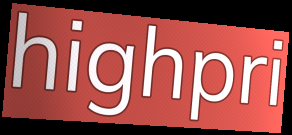
highpri